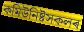
কমিউনিষ্টসকলৰ